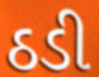
ઠડી